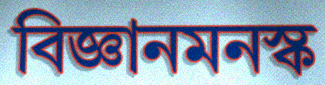
বিজ্ঞানমনস্ক